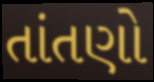
તાંતણો